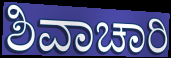
ಶಿವಾಚಾರಿ